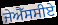
ਜੇਐੱਸਸੀਏ